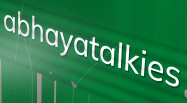
abhayatalkies